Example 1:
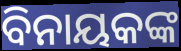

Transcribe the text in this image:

ବିନାୟକଙ୍କ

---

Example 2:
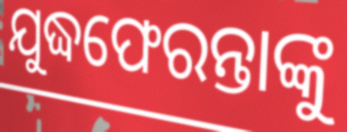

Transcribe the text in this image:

ଯୁଦ୍ଧଫେରନ୍ତାଙ୍କୁ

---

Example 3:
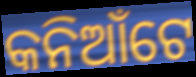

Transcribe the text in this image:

କନିଆଁଟେ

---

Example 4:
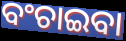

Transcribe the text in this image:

ବଂଚାଇବା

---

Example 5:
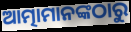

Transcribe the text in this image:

ଆତ୍ମାମାନଙ୍କଠାରୁ